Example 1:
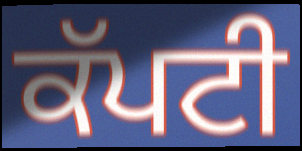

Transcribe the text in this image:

ਕੱਪਟੀ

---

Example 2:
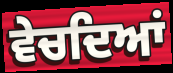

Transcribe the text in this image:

ਵੇਚਦਿਆਂ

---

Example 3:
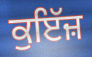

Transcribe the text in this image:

ਕੁਇੱਜ਼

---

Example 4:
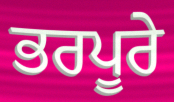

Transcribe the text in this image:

ਭਰਪੂਰੇ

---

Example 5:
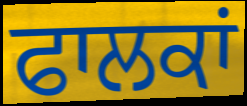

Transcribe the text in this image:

ਫਾਲਕਾਂ